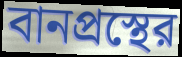
বানপ্রস্থের